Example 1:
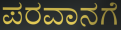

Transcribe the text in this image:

ಪರವಾನಗೆ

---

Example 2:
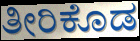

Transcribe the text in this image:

ತೀರಿಕೊಡ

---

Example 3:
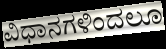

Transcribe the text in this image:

ವಿಧಾನಗಳಿಂದಲೂ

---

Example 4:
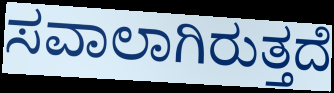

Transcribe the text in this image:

ಸವಾಲಾಗಿರುತ್ತದೆ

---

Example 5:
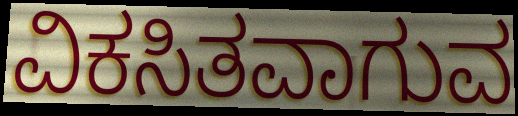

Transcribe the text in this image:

ವಿಕಸಿತವಾಗುವ